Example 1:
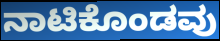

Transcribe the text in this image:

ನಾಟಿಕೊಂಡವು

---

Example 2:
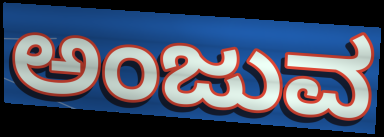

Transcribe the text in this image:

ಅಂಜುವ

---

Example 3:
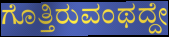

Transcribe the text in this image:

ಗೊತ್ತಿರುವಂಥದ್ದೇ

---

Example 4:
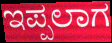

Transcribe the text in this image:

ಇಪ್ಪಲಾಗ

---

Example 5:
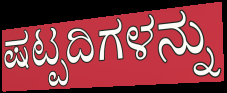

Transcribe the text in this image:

ಷಟ್ಪದಿಗಳನ್ನು